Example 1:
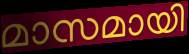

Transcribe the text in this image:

മാസമായി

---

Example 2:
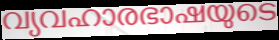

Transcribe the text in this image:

വ്യവഹാരഭാഷയുടെ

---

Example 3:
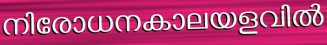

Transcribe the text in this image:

നിരോധനകാലയളവിൽ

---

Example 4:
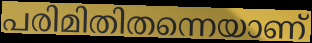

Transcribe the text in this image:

പരിമിതിതന്നെയാണ്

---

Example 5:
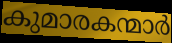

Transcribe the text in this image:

കുമാരകന്മാർ